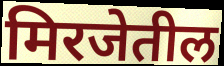
मिरजेतील